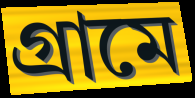
গ্রামে